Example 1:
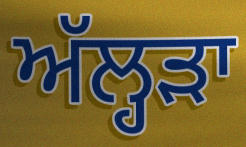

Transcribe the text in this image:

ਅੱਲ੍ਹੜਾ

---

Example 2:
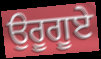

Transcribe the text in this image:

ਉਰੂਗੂਏ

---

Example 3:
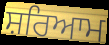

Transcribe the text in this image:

ਸ਼ਰਿਆਮ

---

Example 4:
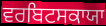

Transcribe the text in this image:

ਵਰਬਿਟਸਕਾਯਾ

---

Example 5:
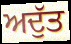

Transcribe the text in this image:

ਅਦੁੱਤ